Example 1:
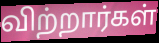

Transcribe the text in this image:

விற்றார்கள்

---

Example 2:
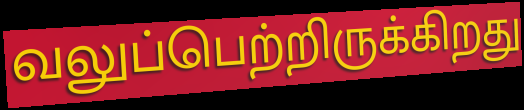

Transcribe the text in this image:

வலுப்பெற்றிருக்கிறது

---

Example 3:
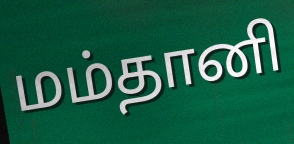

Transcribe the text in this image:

மம்தானி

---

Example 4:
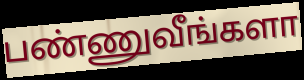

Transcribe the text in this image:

பண்ணுவீங்களா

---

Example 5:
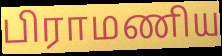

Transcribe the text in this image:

பிராமணிய